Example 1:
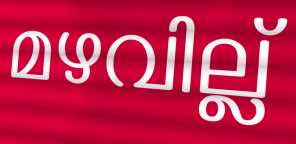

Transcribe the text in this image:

മഴവില്ല്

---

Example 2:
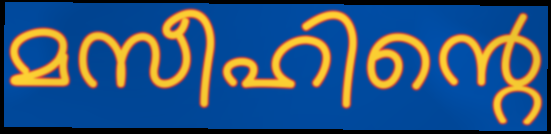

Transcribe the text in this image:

മസീഹിന്റെ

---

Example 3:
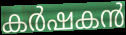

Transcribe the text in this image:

കർഷകൻ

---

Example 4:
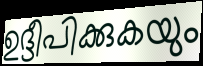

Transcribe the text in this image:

ഉദ്ദീപിക്കുകയും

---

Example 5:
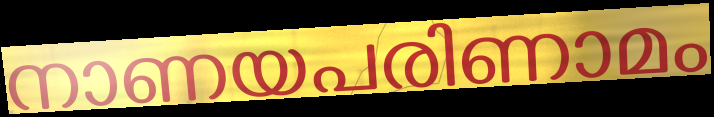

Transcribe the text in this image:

നാണയപരിണാമം